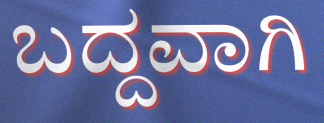
ಬದ್ದವಾಗಿ